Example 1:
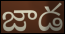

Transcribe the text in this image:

జాడ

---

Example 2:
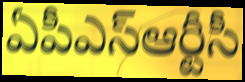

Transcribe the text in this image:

ఏపీఎస్ఆర్టీసీ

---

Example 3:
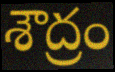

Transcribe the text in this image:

శౌద్రం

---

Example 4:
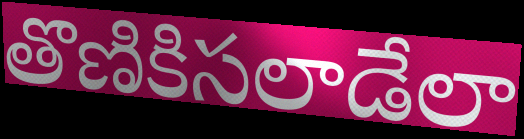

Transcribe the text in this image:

తొణికిసలాడేలా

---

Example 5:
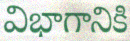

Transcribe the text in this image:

విభాగానికి